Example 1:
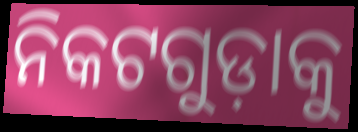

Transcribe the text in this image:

ନିକଟଗୁଡ଼ାକୁ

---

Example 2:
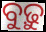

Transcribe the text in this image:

ବୁଢ଼ୁ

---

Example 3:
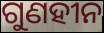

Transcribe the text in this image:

ଗୁଣହୀନ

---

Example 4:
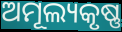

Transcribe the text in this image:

ଅମୂଲ୍ୟକୃଷ୍ଣ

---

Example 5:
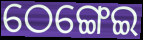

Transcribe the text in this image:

ଠେଙ୍ଗେଇ